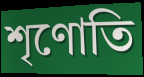
শৃণোতি